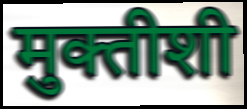
मुक्तीशी